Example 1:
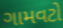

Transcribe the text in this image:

ગામવટો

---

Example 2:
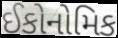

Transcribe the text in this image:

ઈકોનોમિક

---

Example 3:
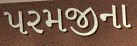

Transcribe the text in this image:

પરમજીના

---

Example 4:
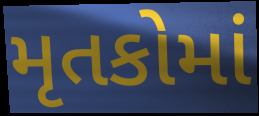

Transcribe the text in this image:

મૃતકોમાં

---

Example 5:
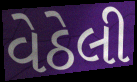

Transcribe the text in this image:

વેઠેલી